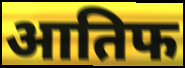
आतिफ